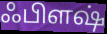
ஃபிளஷ்